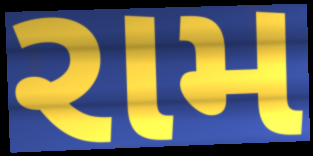
રામ